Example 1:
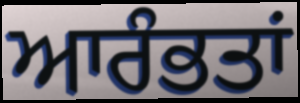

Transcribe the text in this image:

ਆਰੰਭਤਾਂ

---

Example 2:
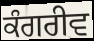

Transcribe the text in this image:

ਕੰਗਰੀਵ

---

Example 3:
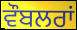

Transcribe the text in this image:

ਵੌਬਲਰਾਂ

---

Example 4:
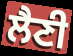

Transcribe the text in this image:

ਲੈਣੀ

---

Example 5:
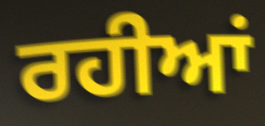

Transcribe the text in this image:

ਰਹੀਆਂ